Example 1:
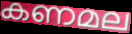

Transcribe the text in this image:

കണമല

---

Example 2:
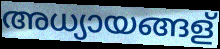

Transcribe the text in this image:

അധ്യായങ്ങള്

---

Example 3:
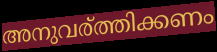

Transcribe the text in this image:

അനുവര്ത്തിക്കണം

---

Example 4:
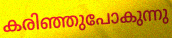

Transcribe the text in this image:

കരിഞ്ഞുപോകുന്നു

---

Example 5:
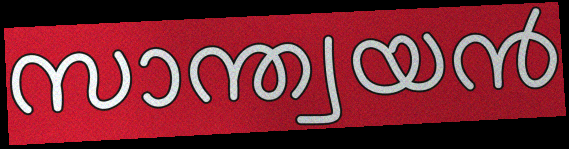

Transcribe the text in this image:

സാന്ത്വയൻ